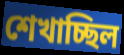
শেখাচ্ছিল